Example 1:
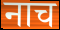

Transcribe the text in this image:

नाच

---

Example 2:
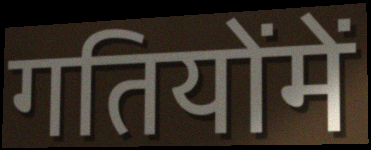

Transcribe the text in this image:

गतियोंमें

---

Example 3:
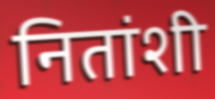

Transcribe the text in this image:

नितांशी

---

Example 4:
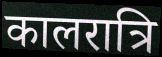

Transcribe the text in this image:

कालरात्रि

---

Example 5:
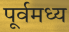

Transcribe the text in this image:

पूर्वमध्य